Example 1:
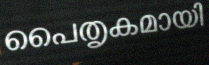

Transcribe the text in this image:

പൈതൃകമായി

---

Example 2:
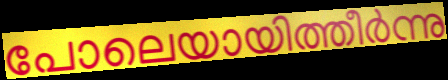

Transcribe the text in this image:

പോലെയായിത്തീർന്നു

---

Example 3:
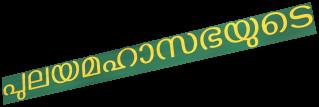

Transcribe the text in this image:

പുലയമഹാസഭയുടെ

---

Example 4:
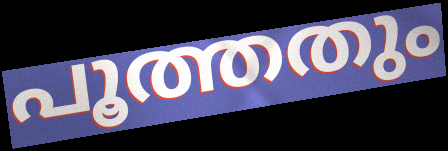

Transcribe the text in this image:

പൂത്തതും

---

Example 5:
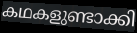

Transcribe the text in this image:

കഥകളുണ്ടാക്കി